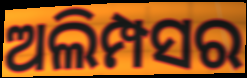
ଅଲିମ୍ପସର